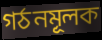
গঠনমূলক